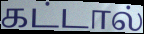
கட்டால்